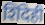
शिंदेही